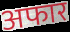
अफार